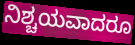
ನಿಶ್ಚಯವಾದರೂ